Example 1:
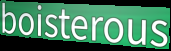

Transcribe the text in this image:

boisterous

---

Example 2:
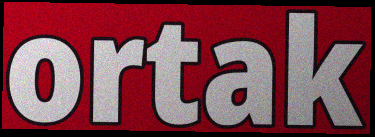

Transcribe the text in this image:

ortak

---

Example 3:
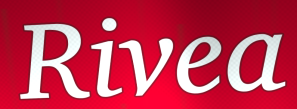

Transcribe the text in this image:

Rivea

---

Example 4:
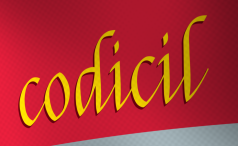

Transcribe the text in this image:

codicil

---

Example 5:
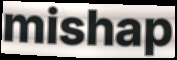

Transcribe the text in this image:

mishap